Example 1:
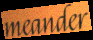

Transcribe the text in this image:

meander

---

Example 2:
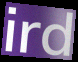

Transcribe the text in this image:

ird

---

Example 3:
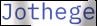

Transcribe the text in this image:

Jothege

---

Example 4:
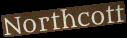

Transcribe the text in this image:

Northcott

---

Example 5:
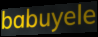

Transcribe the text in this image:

babuyele